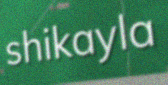
shikayla